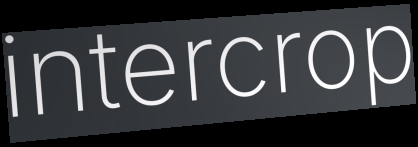
intercrop